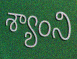
శ్యాంని